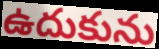
ఉదుకును